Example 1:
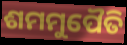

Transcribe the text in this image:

ଶମମୁପୈତି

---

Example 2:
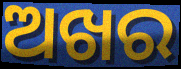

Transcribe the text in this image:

ଅଖର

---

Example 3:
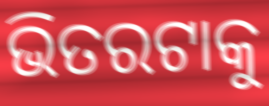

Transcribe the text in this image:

ଭିତରଟାକୁ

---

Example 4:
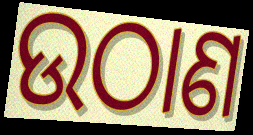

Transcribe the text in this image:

ଉଠାଣ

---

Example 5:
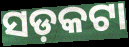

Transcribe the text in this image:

ସଡ଼କଟା